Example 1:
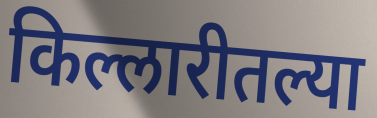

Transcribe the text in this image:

किल्लारीतल्या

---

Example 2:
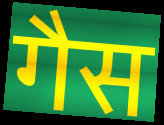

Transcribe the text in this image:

गैस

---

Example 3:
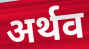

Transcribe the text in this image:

अर्थव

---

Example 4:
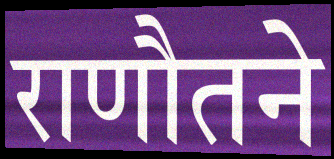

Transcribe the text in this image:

राणौतने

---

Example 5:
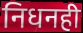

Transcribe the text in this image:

निधनही